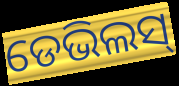
ଡେଭିଲସ୍